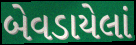
બેવડાયેલાં